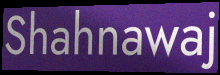
Shahnawaj